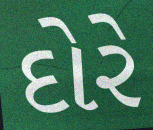
દોરે